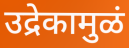
उद्रेकामुळं